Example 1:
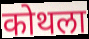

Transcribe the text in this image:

कोथला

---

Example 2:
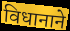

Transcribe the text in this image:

विधानाने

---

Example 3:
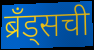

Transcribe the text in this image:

ब्रॅंड्सची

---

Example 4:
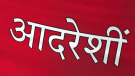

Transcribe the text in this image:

आदरेशीं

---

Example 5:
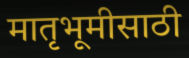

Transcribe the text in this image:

मातृभूमीसाठी